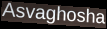
Asvaghosha